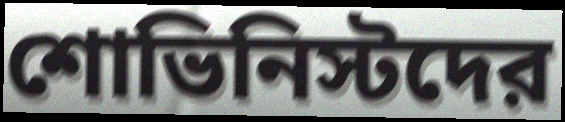
শোভিনিস্টদের